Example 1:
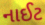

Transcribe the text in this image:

નાઈટ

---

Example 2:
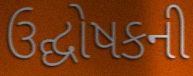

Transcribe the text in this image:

ઉદ્ઘોષકની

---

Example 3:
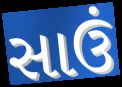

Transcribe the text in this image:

સાઉં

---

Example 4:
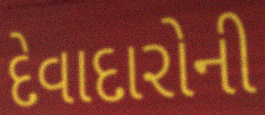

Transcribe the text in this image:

દેવાદારોની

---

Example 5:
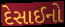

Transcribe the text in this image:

દેસાઈનો